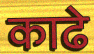
काढे